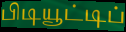
பிடியூட்டிப்